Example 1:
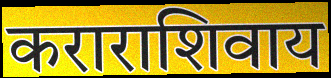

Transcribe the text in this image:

कराराशिवाय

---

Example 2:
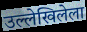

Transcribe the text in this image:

उल्लेखिलेला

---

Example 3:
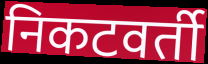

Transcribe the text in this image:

निकटवर्ती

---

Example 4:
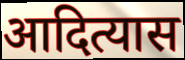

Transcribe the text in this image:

आदित्यास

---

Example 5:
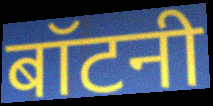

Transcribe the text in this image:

बॉटनी